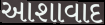
આશાવાદ